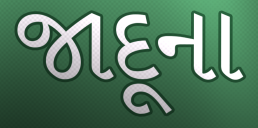
જાદૂના